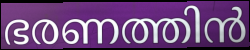
ഭരണത്തിൻ